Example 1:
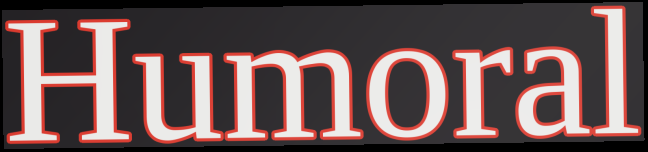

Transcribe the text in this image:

Humoral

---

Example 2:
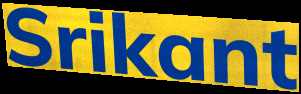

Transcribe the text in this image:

Srikant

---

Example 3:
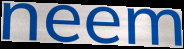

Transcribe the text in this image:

neem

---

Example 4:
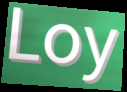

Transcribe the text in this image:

Loy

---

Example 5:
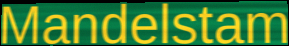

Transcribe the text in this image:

Mandelstam